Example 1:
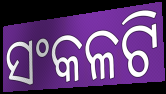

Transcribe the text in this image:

ସଂକଳଟି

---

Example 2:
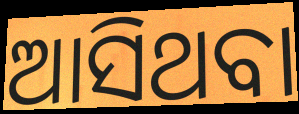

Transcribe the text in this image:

ଆସିଥବା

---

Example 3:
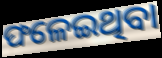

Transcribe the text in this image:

ଫଳେଇଥିବା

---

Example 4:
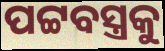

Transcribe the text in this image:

ପଟ୍ଟବସ୍ତ୍ରକୁ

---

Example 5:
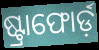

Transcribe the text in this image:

ଷ୍ଟ୍ରାଫୋର୍ଡ଼